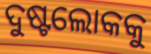
ଦୁଷ୍ଟଲୋକକୁ